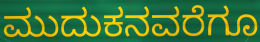
ಮುದುಕನವರೆಗೂ